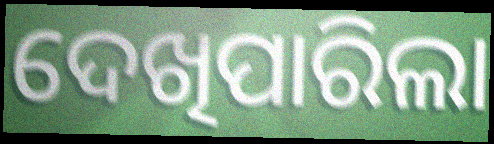
ଦେଖିପାରିଲା